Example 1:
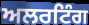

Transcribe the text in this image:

ਅਲਰਟਿੰਗ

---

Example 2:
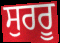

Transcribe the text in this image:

ਸੁਰਰੂ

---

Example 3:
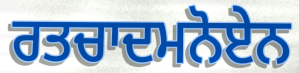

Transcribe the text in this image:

ਰਤਚਾਦਮਨੋਏਨ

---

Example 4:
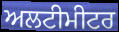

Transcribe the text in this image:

ਅਲਟੀਮੀਟਰ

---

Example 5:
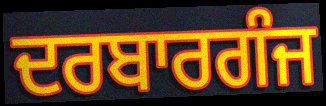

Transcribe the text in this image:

ਦਰਬਾਰਗੰਜ